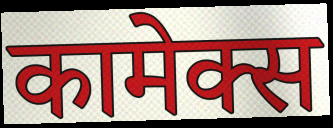
कामेक्स